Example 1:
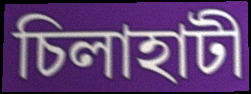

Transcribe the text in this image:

চিলাহাটী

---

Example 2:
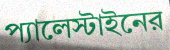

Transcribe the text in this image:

প্যালেস্টাইনের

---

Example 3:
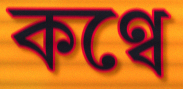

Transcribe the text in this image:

কণ্বে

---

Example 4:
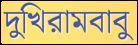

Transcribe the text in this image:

দুখিরামবাবু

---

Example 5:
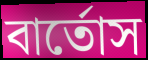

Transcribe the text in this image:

বার্তোস